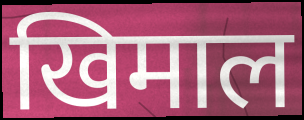
खिमाल